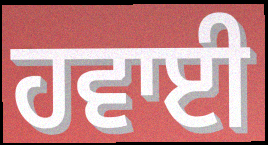
ਹਵਾਈ